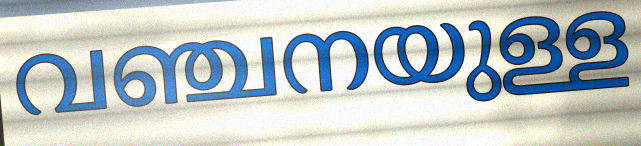
വഞ്ചനയുള്ള